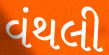
વંથલી